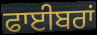
ਫਾਈਬਰਾਂ